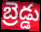
బ్రెడ్డు